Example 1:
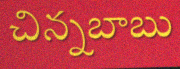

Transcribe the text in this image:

చిన్నబాబు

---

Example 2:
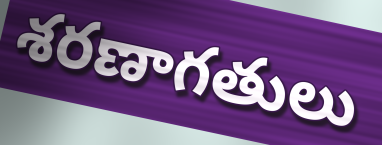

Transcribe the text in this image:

శరణాగతులు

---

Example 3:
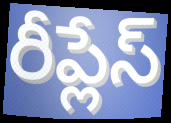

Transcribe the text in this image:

రీప్లేస్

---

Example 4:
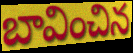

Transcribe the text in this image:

బావించిన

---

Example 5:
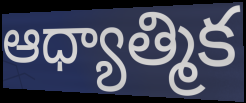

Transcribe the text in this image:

ఆధ్యాత్మిక